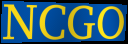
NCGO